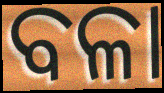
ବଳା